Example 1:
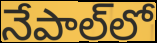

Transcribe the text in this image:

నేపాల్‌లో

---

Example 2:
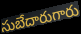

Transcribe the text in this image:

సుబేదారుగారు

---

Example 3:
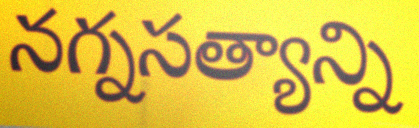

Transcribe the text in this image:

నగ్నసత్యాన్ని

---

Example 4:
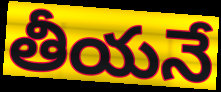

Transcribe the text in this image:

తీయనే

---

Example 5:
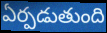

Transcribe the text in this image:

ఏర్పడుతుంది